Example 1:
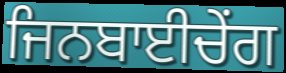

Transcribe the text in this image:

ਜਿਨਬਾਈਚੇਂਗ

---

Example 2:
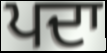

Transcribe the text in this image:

ਪਦਾ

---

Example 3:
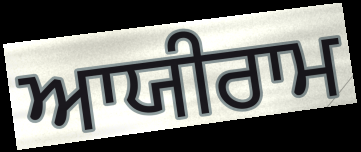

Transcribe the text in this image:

ਆਯੀਰਾਮ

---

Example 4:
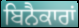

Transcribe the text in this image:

ਬਿਨੈਕਾਰਾਂ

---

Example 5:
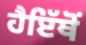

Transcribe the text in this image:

ਹੈਇੱਥੋਂ